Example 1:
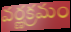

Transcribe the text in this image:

వర్ణక్రమం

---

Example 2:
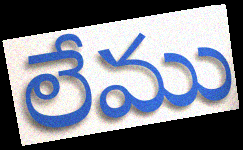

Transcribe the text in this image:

లేము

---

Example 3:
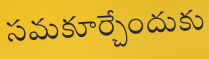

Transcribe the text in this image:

సమకూర్చేందుకు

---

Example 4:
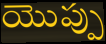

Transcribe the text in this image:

యొప్పు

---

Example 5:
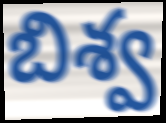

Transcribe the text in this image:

బిశ్వ